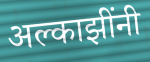
अल्काझींनी